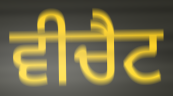
ਵੀਚੈਟ